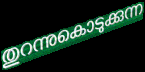
തുറന്നുകൊടുക്കുന്ന